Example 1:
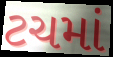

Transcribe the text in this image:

ટચમાં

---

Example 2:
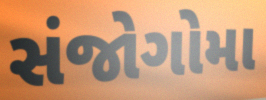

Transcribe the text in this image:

સંજોગોમા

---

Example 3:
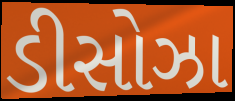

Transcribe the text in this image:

ડીસોઝા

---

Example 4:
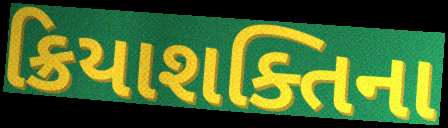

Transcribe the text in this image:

ક્રિયાશક્તિના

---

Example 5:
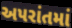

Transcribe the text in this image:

અપરાંતમાં